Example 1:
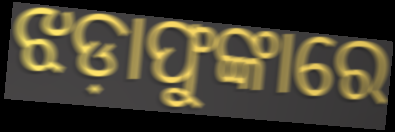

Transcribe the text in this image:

ଝଡ଼ାଫୁଙ୍କାରେ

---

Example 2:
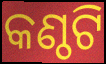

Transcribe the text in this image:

କଣ୍ଠଟି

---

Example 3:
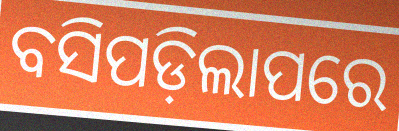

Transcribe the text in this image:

ବସିପଡ଼ିଲାପରେ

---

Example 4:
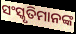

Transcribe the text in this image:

ସଂସ୍କୃତିମାନଙ୍କ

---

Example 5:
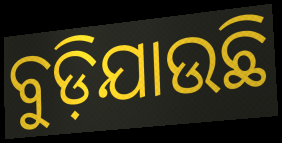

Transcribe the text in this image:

ବୁଡ଼ିଯାଉଛି